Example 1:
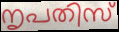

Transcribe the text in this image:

നൃപതിസ്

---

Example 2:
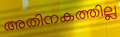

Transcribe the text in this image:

അതിനകത്തില്ല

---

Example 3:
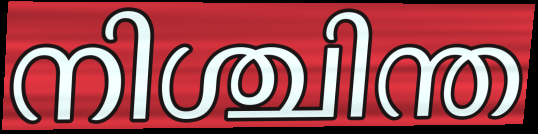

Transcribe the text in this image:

നിശ്ചിന്ത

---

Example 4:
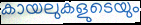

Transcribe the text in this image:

കായലുകളുടെയും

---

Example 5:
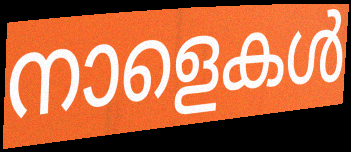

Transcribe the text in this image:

നാളെകൾ